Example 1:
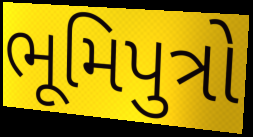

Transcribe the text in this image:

ભૂમિપુત્રો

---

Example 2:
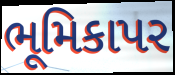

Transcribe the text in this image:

ભૂમિકાપર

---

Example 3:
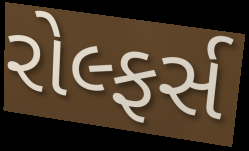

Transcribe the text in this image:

રોલ્ફર્સ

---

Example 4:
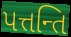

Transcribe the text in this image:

પત્તન્તિ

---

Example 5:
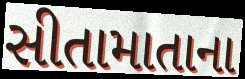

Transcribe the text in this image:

સીતામાતાના